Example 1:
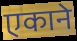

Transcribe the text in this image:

एकाने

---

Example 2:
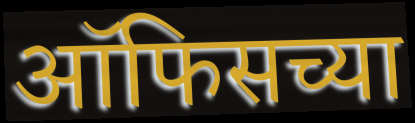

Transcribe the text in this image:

ऑफिसच्या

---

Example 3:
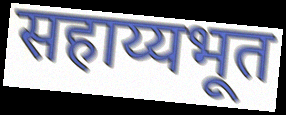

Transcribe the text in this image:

सहाय्यभूत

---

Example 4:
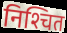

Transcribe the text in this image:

निश्चित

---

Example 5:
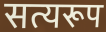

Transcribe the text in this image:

सत्यरूप